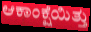
ಆಕಾಂಕ್ಷೆಯಿತ್ತು